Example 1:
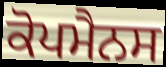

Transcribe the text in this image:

ਕੋਪਮੈਨਸ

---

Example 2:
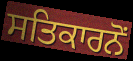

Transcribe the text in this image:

ਸਤਿਕਾਰਨੋਂ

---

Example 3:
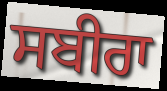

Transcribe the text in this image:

ਸਬੀਰਾ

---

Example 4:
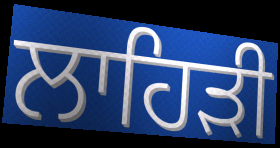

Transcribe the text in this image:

ਲਾਹਿੜੀ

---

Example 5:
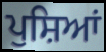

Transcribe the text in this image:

ਪੁਸ਼ਿਆਂ